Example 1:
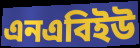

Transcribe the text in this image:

এনএবিইউ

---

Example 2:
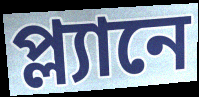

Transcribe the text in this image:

প্ল্যানে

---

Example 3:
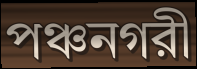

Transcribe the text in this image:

পঞ্চনগরী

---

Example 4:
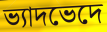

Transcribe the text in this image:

ভ্যাদভেদে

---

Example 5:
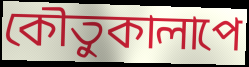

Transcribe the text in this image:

কৌতুকালাপে